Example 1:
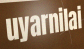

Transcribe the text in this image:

uyarnilai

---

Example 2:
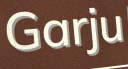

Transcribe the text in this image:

Garju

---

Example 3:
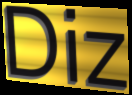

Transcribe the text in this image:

Diz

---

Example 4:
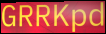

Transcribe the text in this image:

GRRKpd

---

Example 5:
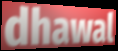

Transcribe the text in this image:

dhawal